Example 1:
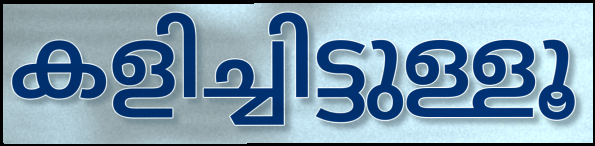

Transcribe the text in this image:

കളിച്ചിട്ടുള്ളൂ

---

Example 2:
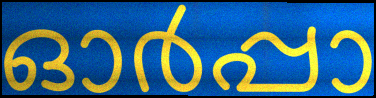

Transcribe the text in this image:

ഓർപ്പാ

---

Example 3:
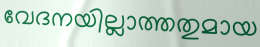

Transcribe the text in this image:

വേദനയില്ലാത്തതുമായ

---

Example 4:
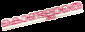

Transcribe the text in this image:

കൊണ്ടല്ലാതെ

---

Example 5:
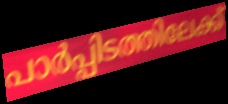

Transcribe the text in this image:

പാർപ്പിടത്തിലേക്ക്